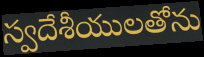
స్వదేశీయులతోను